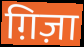
ग़िज़ा